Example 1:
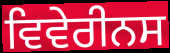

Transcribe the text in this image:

ਵਿਵੇਰੀਨਸ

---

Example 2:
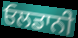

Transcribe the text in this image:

ਓਲਡਾਨੀ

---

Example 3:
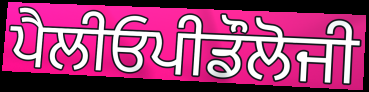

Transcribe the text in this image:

ਪੈਲੀਓਪੀਡੌਲੋਜੀ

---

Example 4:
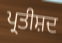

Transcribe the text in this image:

ਪ੍ਰਤੀਸ਼ਦ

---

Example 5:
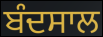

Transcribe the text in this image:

ਬੰਦਸਾਲ